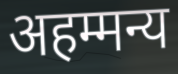
अहम्मन्य